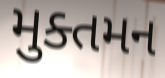
મુક્તમન